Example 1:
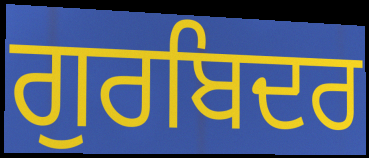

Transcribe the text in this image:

ਗੁਰਬਿਦਰ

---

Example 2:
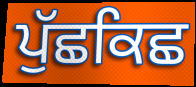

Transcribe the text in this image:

ਪੁੱਛਕਿਛ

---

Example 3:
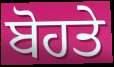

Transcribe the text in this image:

ਬੋਹਤੇ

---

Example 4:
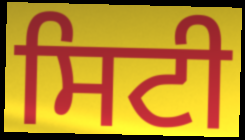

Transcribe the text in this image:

ਸਿਟੀ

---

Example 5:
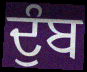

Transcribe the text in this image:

ਦੁੰਬ